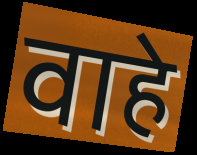
वाहे